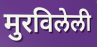
मुरविलेली